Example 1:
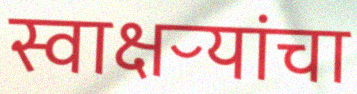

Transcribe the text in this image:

स्वाक्षऱ्यांचा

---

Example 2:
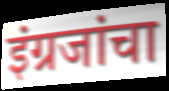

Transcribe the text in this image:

इंग्रजांचा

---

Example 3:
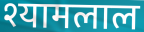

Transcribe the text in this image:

श्यामलाल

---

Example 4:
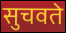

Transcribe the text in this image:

सुचवते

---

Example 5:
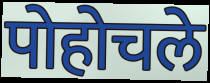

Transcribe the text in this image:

पोहोचले